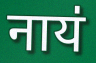
नाय॑